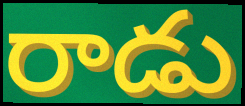
రాడు